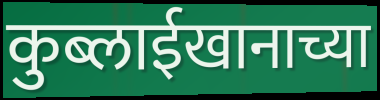
कुब्लाईखानाच्या